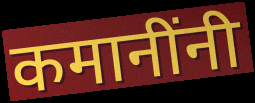
कमानींनी